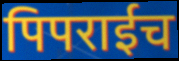
पिपराईच